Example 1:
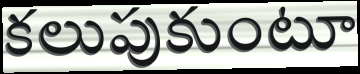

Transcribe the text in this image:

కలుపుకుంటూ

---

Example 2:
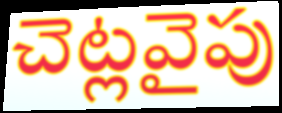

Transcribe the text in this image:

చెట్లవైపు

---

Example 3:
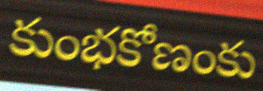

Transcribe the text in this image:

కుంభకోణంకు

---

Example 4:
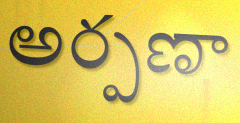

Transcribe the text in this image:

అర్పణా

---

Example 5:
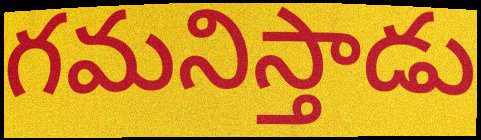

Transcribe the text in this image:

గమనిస్తాడు